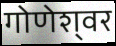
गोणेश्वर